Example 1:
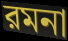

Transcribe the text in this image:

রমনা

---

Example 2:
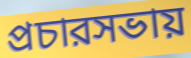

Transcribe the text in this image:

প্রচারসভায়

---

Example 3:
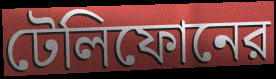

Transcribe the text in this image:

টেলিফোনের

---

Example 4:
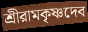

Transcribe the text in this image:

শ্রীরামকৃষ্ণদেব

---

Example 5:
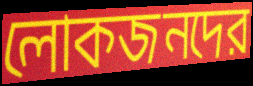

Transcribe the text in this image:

লোকজনদের